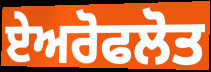
ਏਅਰੋਫਲੋਤ